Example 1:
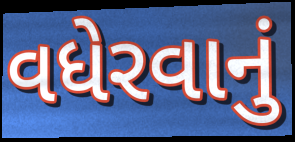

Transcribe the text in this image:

વધેરવાનું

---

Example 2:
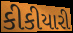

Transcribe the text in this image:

કીકીયારી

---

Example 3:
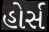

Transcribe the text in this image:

હોર્સ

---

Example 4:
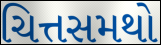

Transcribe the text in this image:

ચિત્તસમથો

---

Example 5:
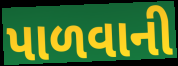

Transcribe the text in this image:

પાળવાની